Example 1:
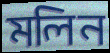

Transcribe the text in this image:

মলিন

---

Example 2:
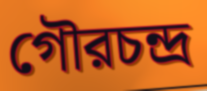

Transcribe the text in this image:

গৌরচন্দ্র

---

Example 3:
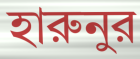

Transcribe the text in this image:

হারুনুর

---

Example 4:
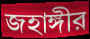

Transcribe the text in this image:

জহাঙ্গীর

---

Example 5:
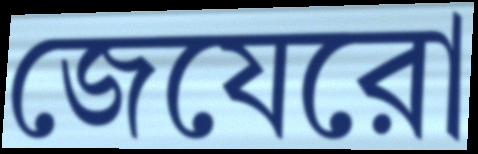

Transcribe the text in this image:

জেযেরো